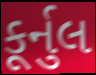
કૂર્નુલ